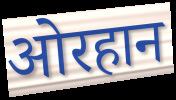
ओरहान